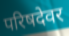
परिषदेवर